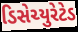
ડિસેચ્યુરેટેડ